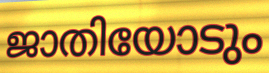
ജാതിയോടും